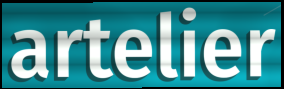
artelier